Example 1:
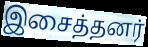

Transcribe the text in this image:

இசைத்தனர்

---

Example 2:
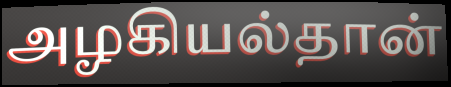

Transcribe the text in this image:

அழகியல்தான்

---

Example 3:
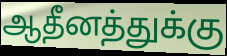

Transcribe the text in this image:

ஆதீனத்துக்கு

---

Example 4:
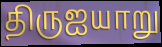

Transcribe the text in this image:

திருஐயாறு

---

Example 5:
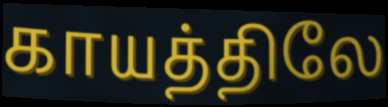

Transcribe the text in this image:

காயத்திலே